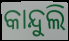
କାନ୍ଦୁଲି